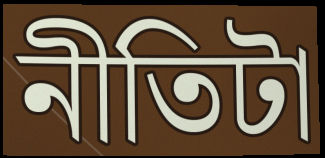
নীতিটা